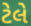
ટેલે